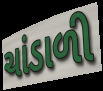
ચાંડાળી